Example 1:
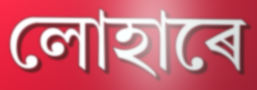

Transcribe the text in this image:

লোহাৰে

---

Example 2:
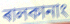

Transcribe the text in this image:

ৰালকানাং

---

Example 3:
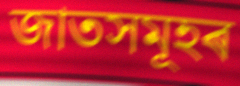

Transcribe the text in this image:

জাতসমূহৰ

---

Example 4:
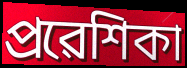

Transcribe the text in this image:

প্ৰৱেশিকা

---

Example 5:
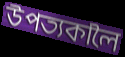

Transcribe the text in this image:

উপত্যকালৈ